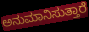
ಅನುಮಾನಿಸುತ್ತಾರೆ